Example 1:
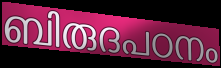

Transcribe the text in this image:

ബിരുദപഠനം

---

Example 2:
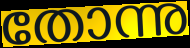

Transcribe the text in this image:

തോന്നു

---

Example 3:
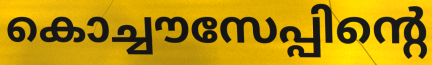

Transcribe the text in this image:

കൊച്ചൗസേപ്പിന്റെ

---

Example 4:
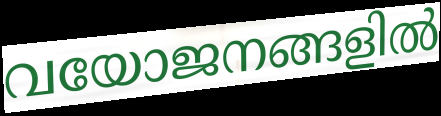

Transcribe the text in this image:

വയോജനങ്ങളിൽ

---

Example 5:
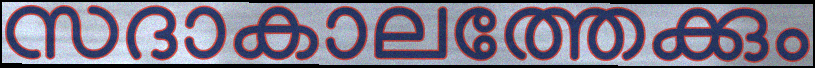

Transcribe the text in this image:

സദാകാലത്തേക്കും